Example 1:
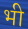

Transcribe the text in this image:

भी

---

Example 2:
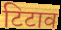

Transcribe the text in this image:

टिटाव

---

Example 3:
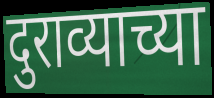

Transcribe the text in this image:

दुराव्याच्या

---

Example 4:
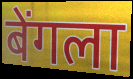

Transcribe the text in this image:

बेंगला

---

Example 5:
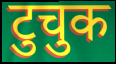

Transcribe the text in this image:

टुचुक